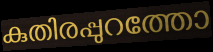
കുതിരപ്പുറത്തോ